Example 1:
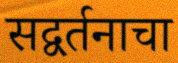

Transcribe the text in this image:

सद्वर्तनाचा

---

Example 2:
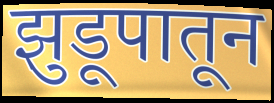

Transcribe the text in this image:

झुडूपातून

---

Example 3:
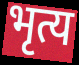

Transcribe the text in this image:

भृत्य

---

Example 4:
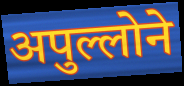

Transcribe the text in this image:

अपुल्लोने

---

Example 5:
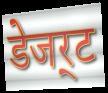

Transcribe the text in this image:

डेजर्ट